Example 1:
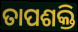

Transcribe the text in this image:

ତାପଶକ୍ତି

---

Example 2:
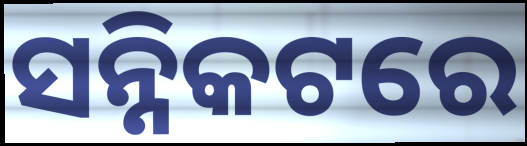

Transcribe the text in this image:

ସନ୍ନିକଟରେ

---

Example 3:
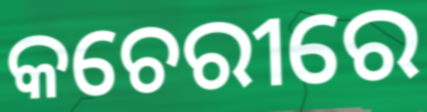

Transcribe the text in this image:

କଚେରୀରେ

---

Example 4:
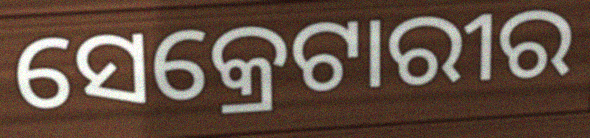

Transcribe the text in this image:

ସେକ୍ରେଟାରୀର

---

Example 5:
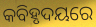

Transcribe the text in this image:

କବିହୃଦୟରେ